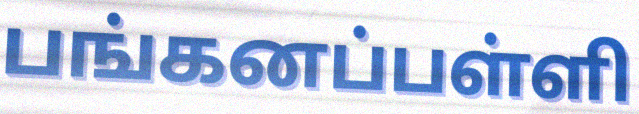
பங்கனப்பள்ளி